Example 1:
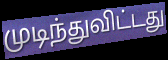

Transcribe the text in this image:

முடிந்துவிட்டது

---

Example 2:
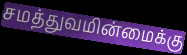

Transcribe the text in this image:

சமத்துவமின்மைக்கு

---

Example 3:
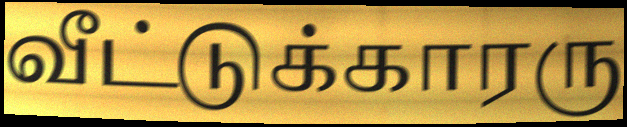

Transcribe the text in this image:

வீட்டுக்காரரு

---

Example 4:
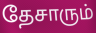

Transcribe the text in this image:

தேசாரும்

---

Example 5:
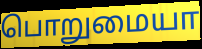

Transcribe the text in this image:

பொறுமையா